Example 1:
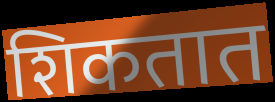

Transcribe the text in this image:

शिकतात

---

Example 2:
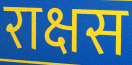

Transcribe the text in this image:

राक्षस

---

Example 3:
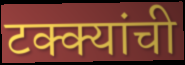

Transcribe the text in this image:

टक्क्यांची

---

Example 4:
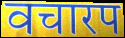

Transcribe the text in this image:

वचारप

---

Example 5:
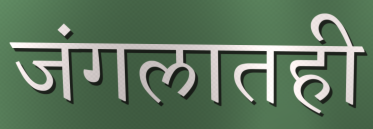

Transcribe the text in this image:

जंगलातही